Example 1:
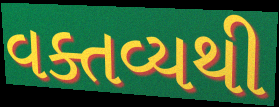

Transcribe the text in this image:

વક્તવ્યથી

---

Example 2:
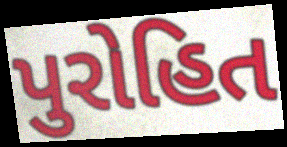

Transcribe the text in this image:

પુરોહિત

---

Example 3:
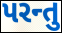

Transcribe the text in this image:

પરન્તુ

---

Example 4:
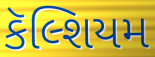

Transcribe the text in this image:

કૅલ્શિયમ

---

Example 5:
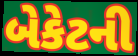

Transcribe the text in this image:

બેકેટની